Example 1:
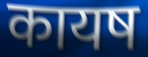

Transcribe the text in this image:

कायष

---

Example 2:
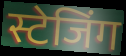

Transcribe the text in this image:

स्टेजिंग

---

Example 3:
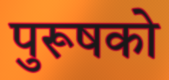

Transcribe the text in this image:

पुरूषको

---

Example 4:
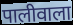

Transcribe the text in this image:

पालीवाला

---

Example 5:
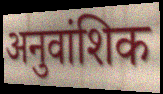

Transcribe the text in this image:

अनुवांशिक